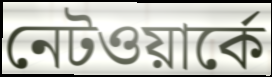
নেটওয়ার্কে